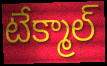
టేక్మాల్